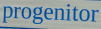
progenitor